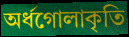
অর্ধগোলাকৃতি